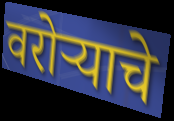
वरोऱ्याचे